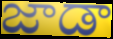
జాడా